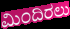
ಮಿಂದಿರಲು